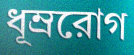
ধূম্ররোগ